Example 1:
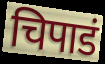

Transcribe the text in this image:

चिपाडं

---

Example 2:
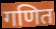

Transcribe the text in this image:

गणित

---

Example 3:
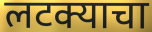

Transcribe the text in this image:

लटक्याचा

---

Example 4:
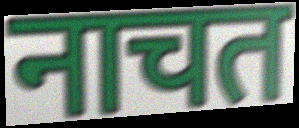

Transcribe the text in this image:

नाचत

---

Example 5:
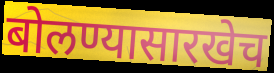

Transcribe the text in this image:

बोलण्यासारखेच